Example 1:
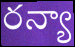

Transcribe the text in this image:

రన్యా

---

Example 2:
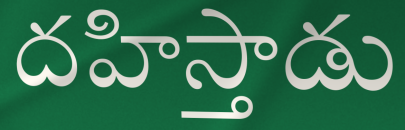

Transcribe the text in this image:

దహిస్తాడు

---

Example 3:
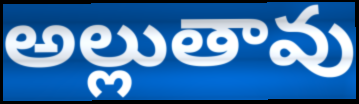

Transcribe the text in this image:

అల్లుతావు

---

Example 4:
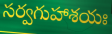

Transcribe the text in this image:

సర్వగుహాశయః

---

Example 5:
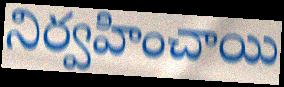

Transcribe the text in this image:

నిర్వహించాయి